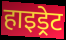
हाइड्रेट